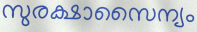
സുരക്ഷാസൈന്യം